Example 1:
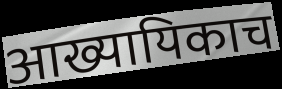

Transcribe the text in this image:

आख्यायिकाच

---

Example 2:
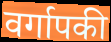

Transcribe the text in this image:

वर्गापकी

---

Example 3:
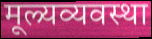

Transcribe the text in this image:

मूल्यव्यवस्था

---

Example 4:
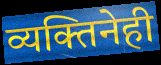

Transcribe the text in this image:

व्यक्तिनेही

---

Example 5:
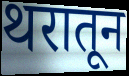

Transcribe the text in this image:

थरातून